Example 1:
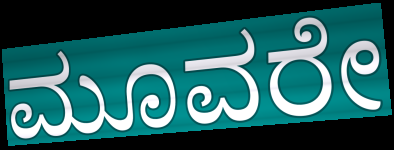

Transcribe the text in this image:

ಮೂವರೇ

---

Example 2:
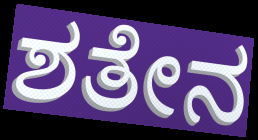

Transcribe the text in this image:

ಶತೇನ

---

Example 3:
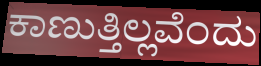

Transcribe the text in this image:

ಕಾಣುತ್ತಿಲ್ಲವೆಂದು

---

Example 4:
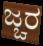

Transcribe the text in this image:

ಜ್ಚರ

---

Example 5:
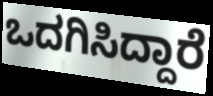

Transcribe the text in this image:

ಒದಗಿಸಿದ್ದಾರೆ